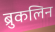
ब्रुकलिन